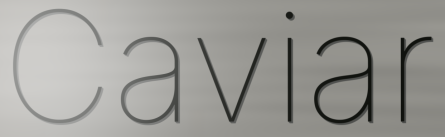
Caviar